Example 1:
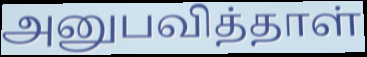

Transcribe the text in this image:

அனுபவித்தாள்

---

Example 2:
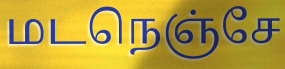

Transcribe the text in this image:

மடநெஞ்சே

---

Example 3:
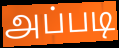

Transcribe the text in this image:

அப்படி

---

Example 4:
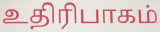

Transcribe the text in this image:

உதிரிபாகம்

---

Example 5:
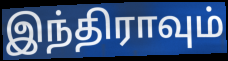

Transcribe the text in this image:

இந்திராவும்